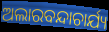
ଅଲାରବନ୍ଦାଚାର୍ଯ୍ୟ